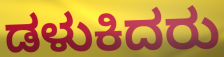
ಡಳುಕಿದರು